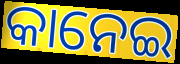
କାନେଇ